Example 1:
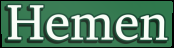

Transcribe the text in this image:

Hemen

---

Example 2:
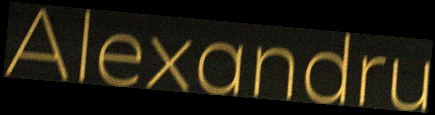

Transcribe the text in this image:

Alexandru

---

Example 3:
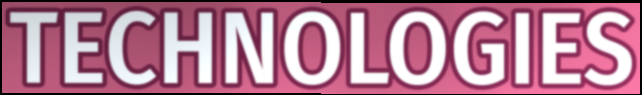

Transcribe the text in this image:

TECHNOLOGIES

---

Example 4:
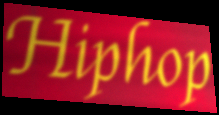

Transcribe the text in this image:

Hiphop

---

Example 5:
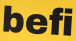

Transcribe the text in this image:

befi